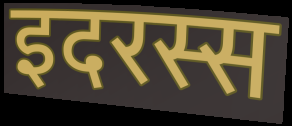
इदरस्स